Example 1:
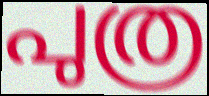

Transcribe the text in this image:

പുത്ര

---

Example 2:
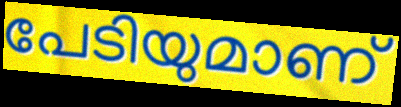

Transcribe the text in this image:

പേടിയുമാണ്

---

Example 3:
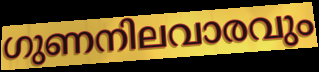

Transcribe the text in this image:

ഗുണനിലവാരവും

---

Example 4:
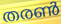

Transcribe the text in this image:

തരൺ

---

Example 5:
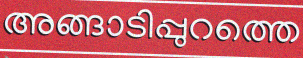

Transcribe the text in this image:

അങ്ങാടിപ്പുറത്തെ